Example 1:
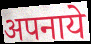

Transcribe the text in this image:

अपनाये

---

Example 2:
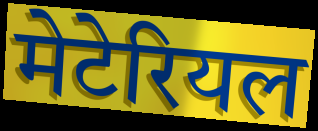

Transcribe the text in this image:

मेटेरियल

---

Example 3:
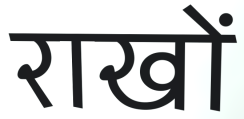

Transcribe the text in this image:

राखों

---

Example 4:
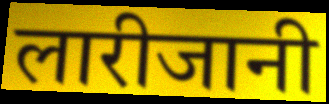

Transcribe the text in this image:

लारीजानी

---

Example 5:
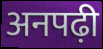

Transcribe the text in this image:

अनपढ़ी